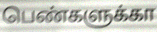
பெண்களுக்கா